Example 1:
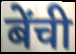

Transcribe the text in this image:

बेंची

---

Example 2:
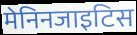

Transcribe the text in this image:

मेनिनजाइटिस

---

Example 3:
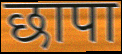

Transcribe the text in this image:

छापा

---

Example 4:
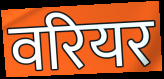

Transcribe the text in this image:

वरियर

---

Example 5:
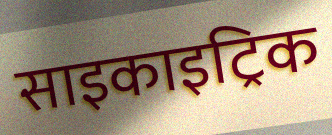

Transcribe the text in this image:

साइकाइट्रिक